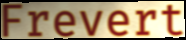
Frevert